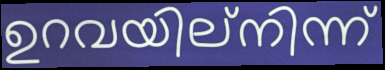
ഉറവയില്നിന്ന്